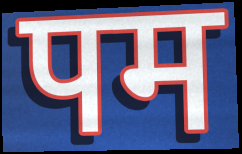
पम